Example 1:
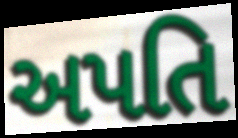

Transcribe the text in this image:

અપતિ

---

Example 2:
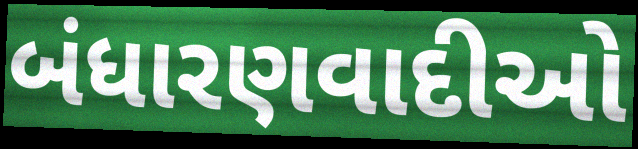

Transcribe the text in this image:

બંધારણવાદીઓ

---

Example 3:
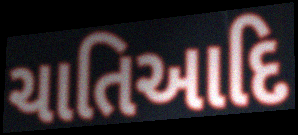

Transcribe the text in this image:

ચાતિઆદિ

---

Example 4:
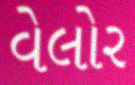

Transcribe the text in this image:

વેલોર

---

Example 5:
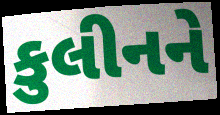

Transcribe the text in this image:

કુલીનને